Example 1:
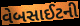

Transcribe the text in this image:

વેબસાઈટની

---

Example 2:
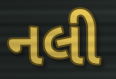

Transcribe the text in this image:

નલી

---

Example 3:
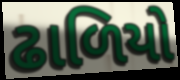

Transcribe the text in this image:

ઢાળિયો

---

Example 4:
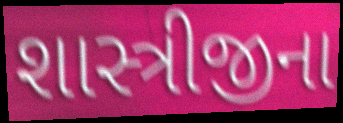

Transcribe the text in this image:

શાસ્ત્રીજીના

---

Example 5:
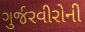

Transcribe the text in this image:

ગુર્જરવીરોની